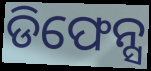
ଡିଫେନ୍ସ